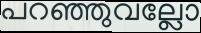
പറഞ്ഞുവല്ലോ